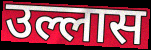
उल्लास